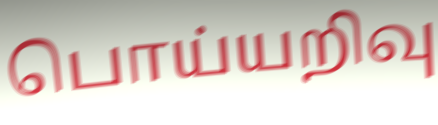
பொய்யறிவு